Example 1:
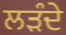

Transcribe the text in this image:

ਲੜੰਦੇ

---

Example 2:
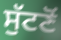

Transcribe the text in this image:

ਸੁੱਟਣੋਂ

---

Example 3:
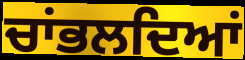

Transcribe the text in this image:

ਚਾਂਭਲਦਿਆਂ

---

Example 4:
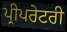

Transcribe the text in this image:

ਪ੍ਰੀਪਰੇਟਰੀ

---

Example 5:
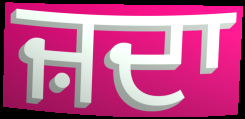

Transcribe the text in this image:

ਜ਼ਦਾ